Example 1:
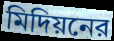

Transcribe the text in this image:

মিদিয়নের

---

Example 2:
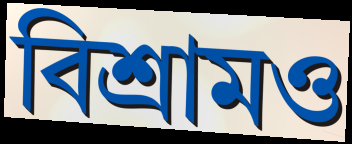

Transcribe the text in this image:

বিশ্রামও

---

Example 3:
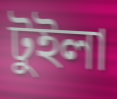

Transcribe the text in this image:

টুইলা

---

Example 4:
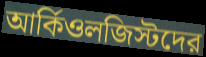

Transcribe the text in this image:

আর্কিওলজিস্টদের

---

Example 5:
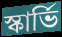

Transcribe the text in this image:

স্কার্ভি